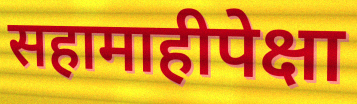
सहामाहीपेक्षा